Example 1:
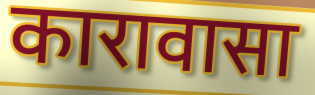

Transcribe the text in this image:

कारावासा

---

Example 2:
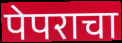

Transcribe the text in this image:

पेपराचा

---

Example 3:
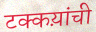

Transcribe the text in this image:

टक्कय़ांची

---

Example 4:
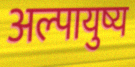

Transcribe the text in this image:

अल्पायुष्य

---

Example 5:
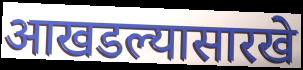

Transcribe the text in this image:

आखडल्यासारखे